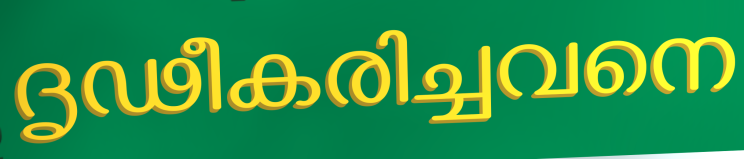
ദൃഢീകരിച്ചവനെ